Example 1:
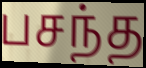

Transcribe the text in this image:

பசந்த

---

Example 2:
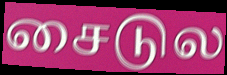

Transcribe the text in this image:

சைடுல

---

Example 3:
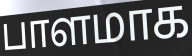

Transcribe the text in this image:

பாளமாக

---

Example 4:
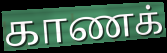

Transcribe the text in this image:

காணக்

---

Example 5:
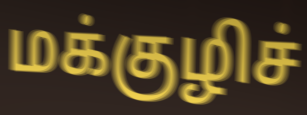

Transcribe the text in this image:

மக்குழிச்